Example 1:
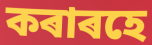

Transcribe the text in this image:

কৰাৰহে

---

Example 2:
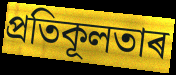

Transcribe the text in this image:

প্ৰতিকূলতাৰ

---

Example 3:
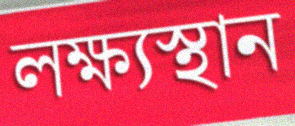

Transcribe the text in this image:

লক্ষ্যস্থান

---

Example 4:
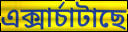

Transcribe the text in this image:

এক্সাৰ্চাটাছে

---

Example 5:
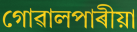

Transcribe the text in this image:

গোৱালপাৰীয়া